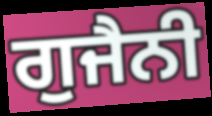
ਗੁਜੈਨੀ